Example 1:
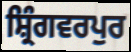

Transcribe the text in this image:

ਸ਼੍ਰਿੰਗਵਰਪੁਰ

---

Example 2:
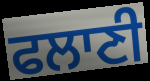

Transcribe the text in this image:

ਫਲਾਣੀ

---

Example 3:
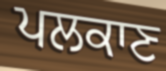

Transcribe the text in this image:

ਪਲਕਾਣ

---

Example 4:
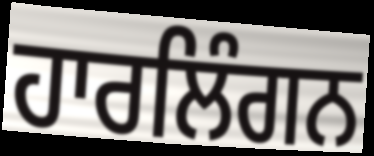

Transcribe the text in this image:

ਹਾਰਲਿੰਗਨ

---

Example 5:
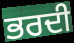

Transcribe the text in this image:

ਭਰਦੀ